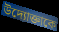
উদ্যোক্তাকে